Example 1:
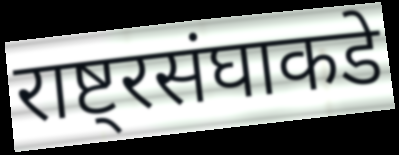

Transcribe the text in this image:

राष्ट्रसंघाकडे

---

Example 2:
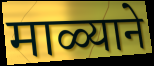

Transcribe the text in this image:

माळ्याने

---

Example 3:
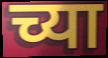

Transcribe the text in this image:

च्या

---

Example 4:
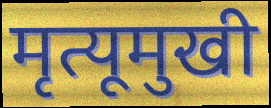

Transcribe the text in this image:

मृत्यूमुखी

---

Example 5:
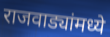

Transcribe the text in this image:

राजवाड्यांमध्ये